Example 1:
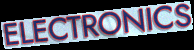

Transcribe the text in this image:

ELECTRONICS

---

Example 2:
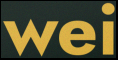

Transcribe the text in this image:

wei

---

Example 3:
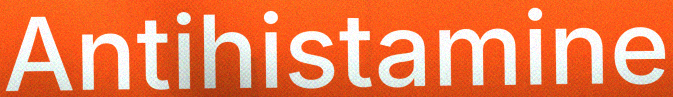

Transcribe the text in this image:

Antihistamine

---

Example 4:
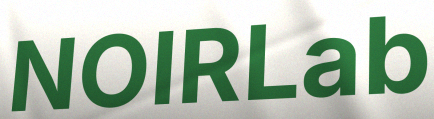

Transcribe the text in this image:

NOIRLab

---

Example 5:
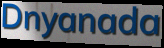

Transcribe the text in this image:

Dnyanada